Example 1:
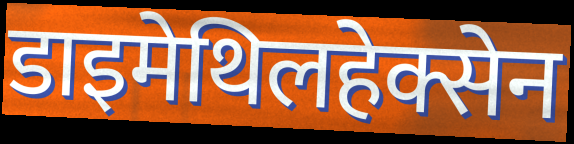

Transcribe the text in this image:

डाइमेथिलहेक्सेन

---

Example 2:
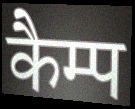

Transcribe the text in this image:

कैम्प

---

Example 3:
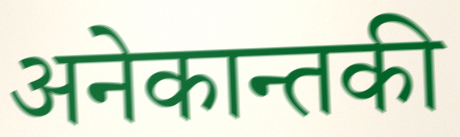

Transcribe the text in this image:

अनेकान्तकी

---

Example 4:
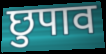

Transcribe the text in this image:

छुपाव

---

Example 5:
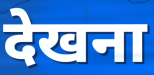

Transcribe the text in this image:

देखना